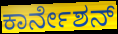
ಕಾರ್ನೇಶನ್